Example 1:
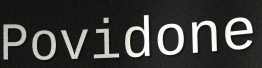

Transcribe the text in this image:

Povidone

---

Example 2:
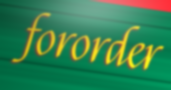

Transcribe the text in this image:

fororder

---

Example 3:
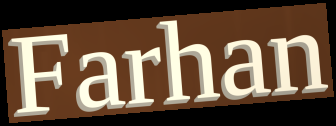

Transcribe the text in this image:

Farhan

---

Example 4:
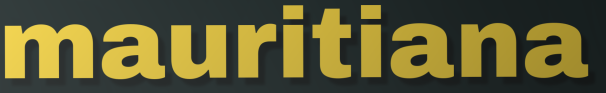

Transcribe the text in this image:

mauritiana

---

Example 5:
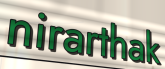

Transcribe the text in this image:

nirarthak